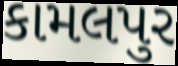
કામલપુર